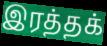
இரத்தக்